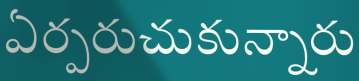
ఏర్పరుచుకున్నారు